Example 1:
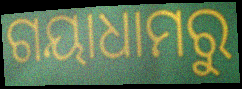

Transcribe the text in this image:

ଗୟାଧାମରୁ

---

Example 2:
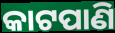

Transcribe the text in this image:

କାଟପାଣି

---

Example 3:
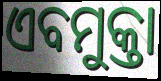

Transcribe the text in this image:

ଏବମୁକ୍ତା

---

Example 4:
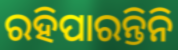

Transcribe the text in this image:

ରହିପାରନ୍ତିନି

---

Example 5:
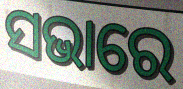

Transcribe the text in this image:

ସଭାରେ